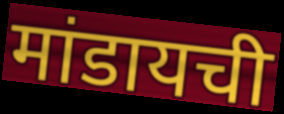
मांडायची